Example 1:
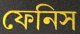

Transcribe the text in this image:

ফেনিস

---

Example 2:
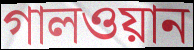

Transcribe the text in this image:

গালওয়ান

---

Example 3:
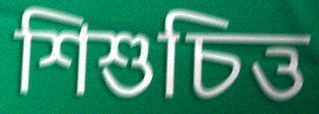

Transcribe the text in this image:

শিশুচিত্ত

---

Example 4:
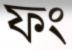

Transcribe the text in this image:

ফং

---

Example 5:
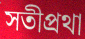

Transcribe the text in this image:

সতীপ্রথা